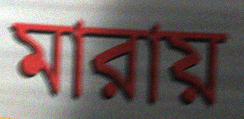
মারায়